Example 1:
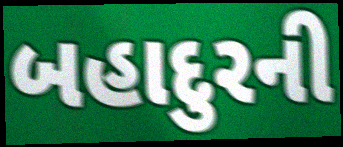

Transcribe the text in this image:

બહાદુરની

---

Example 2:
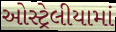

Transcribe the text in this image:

ઓસ્ટ્રેલીયામાં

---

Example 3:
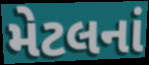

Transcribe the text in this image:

મેટલનાં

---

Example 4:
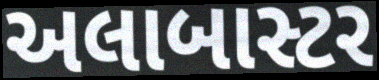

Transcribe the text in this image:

અલાબાસ્ટર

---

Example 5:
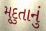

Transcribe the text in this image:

મૃદુતાનું